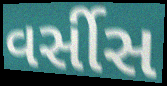
વર્સીસ